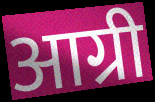
आग्री